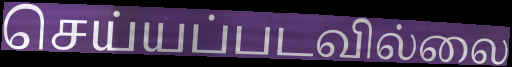
செய்யப்படவில்லை